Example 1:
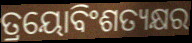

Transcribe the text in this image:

ତ୍ରୟୋବିଂଶତ୍ୟକ୍ଷର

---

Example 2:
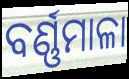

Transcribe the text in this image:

ବର୍ଣ୍ଣମାଳା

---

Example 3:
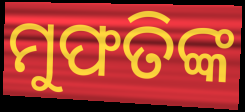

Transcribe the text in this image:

ମୁଫତିଙ୍କ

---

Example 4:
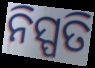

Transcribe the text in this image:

ନିସ୍ପତି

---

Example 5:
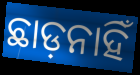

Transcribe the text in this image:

ଛାଡ଼ନାହିଁ